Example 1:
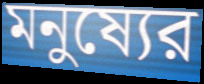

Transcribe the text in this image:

মনুষ্যের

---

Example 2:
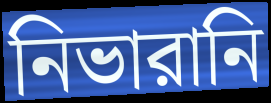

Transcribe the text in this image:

নিভারানি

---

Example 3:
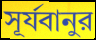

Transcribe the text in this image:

সূর্যবানুর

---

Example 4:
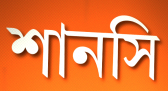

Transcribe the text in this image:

শানসি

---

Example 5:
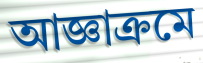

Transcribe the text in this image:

আজ্ঞাক্রমে